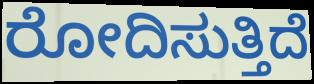
ರೋದಿಸುತ್ತಿದೆ